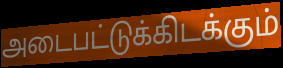
அடைபட்டுக்கிடக்கும்